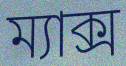
ম্যাক্স